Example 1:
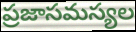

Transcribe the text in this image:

ప్రజాసమస్యల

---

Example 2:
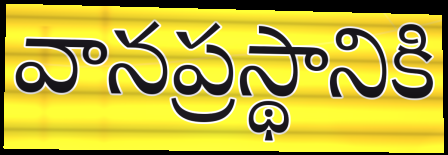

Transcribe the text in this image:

వానప్రస్థానికి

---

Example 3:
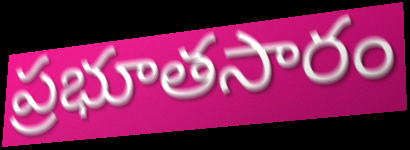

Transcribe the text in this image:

ప్రభూతసారం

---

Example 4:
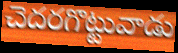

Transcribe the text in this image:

చెదరగొట్టువాడు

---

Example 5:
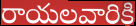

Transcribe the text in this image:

రాయలవారికి